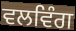
ਵਲਵਿੰਗ